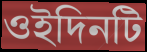
ওইদিনটি